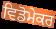
ਵਿਡੋਮੇਕਰ